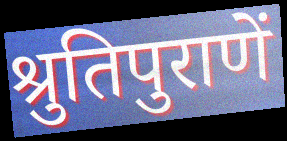
श्रुतिपुराणें